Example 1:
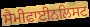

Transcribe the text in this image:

ਸੈਮੀਫਾਈਨਲਿਸਟ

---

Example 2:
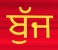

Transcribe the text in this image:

ਬੁੱਜ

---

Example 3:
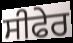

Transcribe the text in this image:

ਸੀਫੇਰ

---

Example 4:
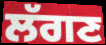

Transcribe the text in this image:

ਲੱਗਣ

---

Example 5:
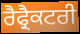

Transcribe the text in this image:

ਰੈਫ੍ਰੈਕਟਰੀ